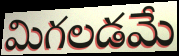
మిగలడమే